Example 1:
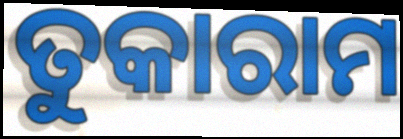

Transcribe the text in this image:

ତୁକାରାମ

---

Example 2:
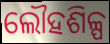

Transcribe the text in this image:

ଲୌହଶିଳ୍ପ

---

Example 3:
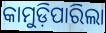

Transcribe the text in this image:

କାମୁଡ଼ିପାରିଲା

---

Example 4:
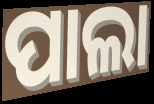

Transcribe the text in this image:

ପାଲା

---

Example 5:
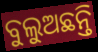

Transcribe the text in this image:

ବୁଲୁଅଛନ୍ତି